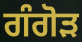
ਗੰਗੋੜ